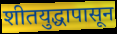
शीतयुद्धापासून